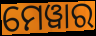
ମେୱାର